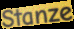
Stanze